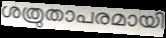
ശത്രുതാപരമായി